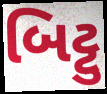
બિટ્ટુ